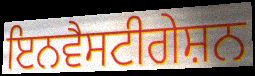
ਇਨਵੈਸਟੀਗੇਸ਼ਨ